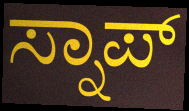
ಸ್ನಾಪ್